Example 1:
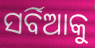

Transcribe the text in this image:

ସର୍ବିଆକୁ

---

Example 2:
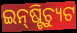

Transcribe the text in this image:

ଇନ୍‌ଷ୍ଟିଚ୍ୟୁଟ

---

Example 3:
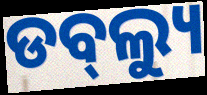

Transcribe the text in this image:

ଡବ୍‌ଲ୍ୟୁ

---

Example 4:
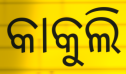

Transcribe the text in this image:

କାକୁଲି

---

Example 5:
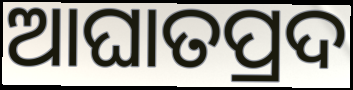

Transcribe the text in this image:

ଆଘାତପ୍ରଦ